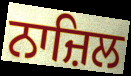
ਨਾਜ਼ਿਲ